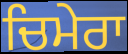
ਚਿਮੇਰਾ